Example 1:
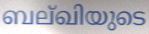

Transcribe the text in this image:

ബല്ഖിയുടെ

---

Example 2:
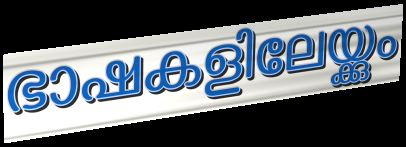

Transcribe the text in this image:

ഭാഷകളിലേയ്ക്കും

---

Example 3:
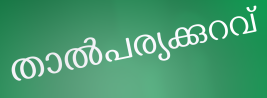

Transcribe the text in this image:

താൽപര്യക്കുറവ്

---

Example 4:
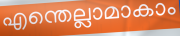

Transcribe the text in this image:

എന്തെല്ലാമാകാം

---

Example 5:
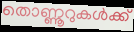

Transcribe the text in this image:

തൊണ്ണൂറുകൾക്ക്